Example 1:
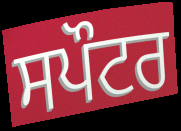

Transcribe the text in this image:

ਸਪੌਟਰ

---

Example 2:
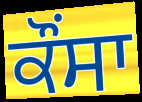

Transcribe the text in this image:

ਕੌਂਸਾ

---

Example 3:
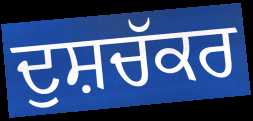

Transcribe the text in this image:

ਦੁਸ਼ਚੱਕਰ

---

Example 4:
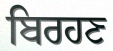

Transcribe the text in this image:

ਬਿਰਹਣ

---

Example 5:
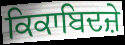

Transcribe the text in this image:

ਕਿਕਾਬਿਦਜ਼ੇ